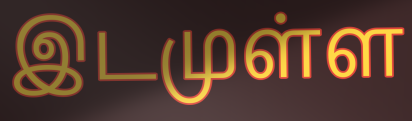
இடமுள்ள